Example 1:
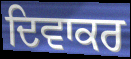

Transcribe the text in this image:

ਦਿਵਾਕਰ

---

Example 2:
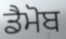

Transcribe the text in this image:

ਡੈਮੋਬ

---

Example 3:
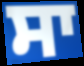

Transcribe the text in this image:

ਸਾ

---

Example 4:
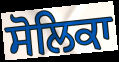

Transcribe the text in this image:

ਸੋਲਿਕਾ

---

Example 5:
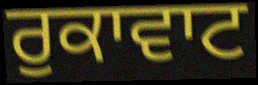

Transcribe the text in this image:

ਰੁਕਾਵਾਟ